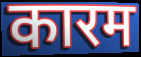
कारम